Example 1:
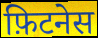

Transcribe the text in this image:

फ़िटनेस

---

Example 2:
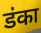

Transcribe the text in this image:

डंका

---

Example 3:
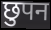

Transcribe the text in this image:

छुपन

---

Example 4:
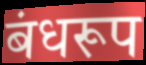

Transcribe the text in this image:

बंधरूप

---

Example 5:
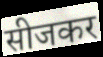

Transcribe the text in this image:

सीजकर